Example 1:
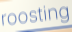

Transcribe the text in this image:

roosting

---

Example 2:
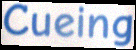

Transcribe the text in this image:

Cueing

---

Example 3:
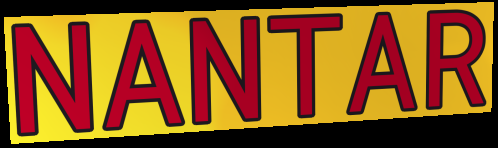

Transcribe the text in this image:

NANTAR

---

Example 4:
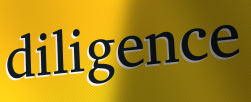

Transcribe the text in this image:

diligence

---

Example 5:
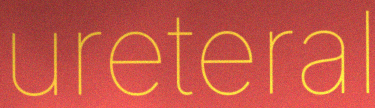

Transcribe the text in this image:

ureteral